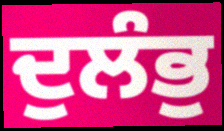
ਦੁਲੰਭੁ